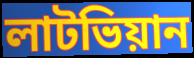
লাটভিয়ান